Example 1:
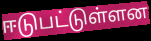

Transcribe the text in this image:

ஈடுபட்டுள்ளன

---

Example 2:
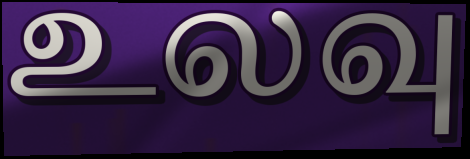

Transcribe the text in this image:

உலவு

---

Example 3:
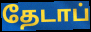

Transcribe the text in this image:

தேடாப்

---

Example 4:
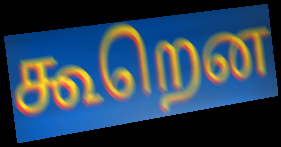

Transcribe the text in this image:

கூறென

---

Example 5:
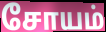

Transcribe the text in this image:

சோயம்